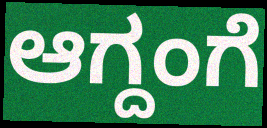
ಆಗ್ದಂಗೆ